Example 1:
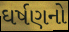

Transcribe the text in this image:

ઘર્ષણનો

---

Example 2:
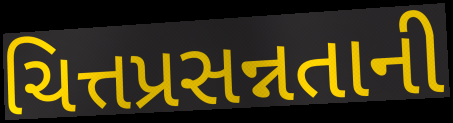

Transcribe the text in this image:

ચિત્તપ્રસન્નતાની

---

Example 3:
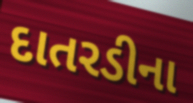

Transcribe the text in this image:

દાતરડીના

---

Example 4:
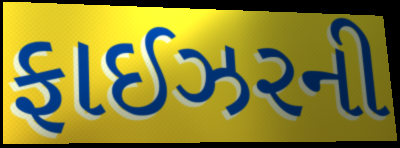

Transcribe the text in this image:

ફાઈઝરની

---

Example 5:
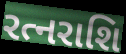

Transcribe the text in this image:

રત્નરાશિ